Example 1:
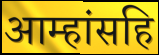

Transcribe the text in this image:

आम्हांसहि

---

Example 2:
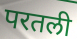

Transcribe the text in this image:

परतली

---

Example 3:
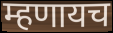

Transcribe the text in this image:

म्हणायच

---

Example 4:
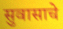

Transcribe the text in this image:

सुवासाचे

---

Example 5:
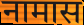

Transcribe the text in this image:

नामास